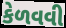
કેળવવી